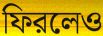
ফিরলেও